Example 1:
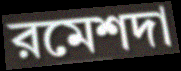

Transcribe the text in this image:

রমেশদা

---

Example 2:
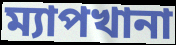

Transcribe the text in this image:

ম্যাপখানা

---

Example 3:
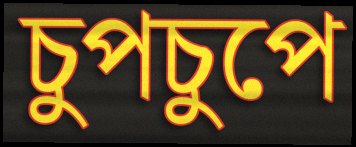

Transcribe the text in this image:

চুপচুপে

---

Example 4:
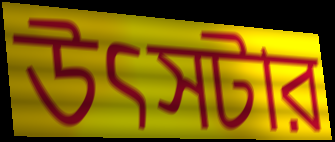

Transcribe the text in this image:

উৎসটার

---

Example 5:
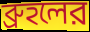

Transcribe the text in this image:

ব্রুহলের